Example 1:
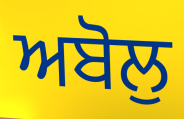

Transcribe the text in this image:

ਅਬੋਲੁ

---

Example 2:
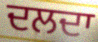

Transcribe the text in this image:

ਦਲਦਾ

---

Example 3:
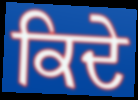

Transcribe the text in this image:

ਕਿਦੇ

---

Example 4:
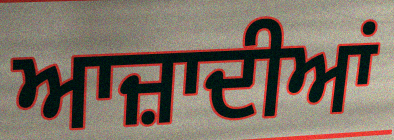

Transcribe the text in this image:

ਆਜ਼ਾਦੀਆਂ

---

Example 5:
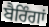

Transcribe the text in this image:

ਬੈਰਿੰਗਾਂ